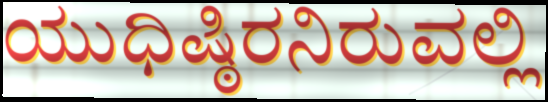
ಯುಧಿಷ್ಠಿರನಿರುವಲ್ಲಿ